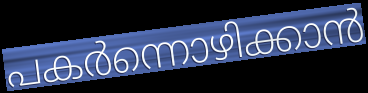
പകർന്നൊഴിക്കാൻ